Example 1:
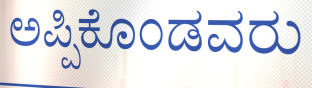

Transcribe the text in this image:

ಅಪ್ಪಿಕೊಂಡವರು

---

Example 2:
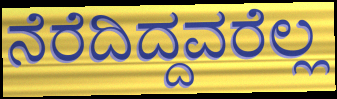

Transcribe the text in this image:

ನೆರೆದಿದ್ದವರೆಲ್ಲ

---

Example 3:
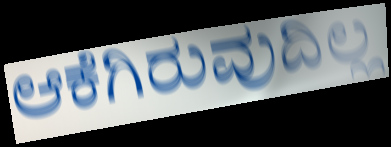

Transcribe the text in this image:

ಆಕೆಗಿರುವುದಿಲ್ಲ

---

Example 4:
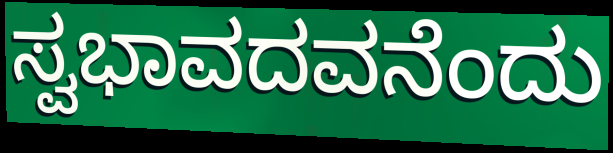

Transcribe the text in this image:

ಸ್ವಭಾವದವನೆಂದು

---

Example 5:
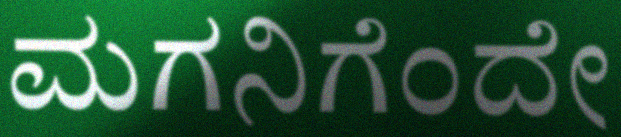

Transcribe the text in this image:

ಮಗನಿಗೆಂದೇ